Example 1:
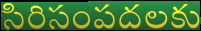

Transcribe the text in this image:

సిరిసంపదలకు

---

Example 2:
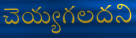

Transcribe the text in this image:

చెయ్యగలదని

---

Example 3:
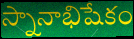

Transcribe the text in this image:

స్నానాభిషేకం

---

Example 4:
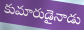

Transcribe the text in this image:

కుమారుడైనాడు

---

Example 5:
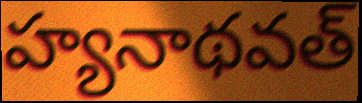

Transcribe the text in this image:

హ్యనాథవత్